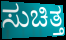
ಸುಚಿತ್ತ